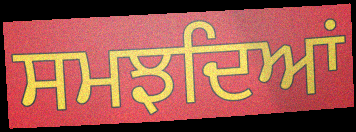
ਸਮਝਦਿਆਂ